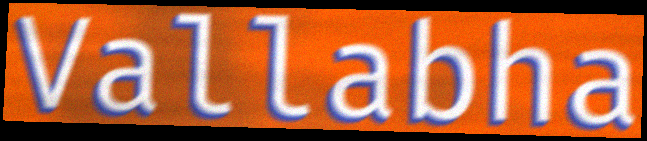
Vallabha